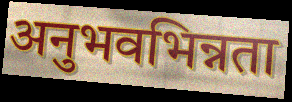
अनुभवभिन्नता